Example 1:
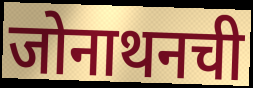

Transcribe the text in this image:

जोनाथनची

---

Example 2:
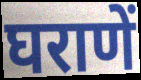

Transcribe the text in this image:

घराणें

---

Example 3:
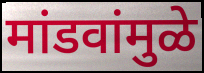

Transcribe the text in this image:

मांडवांमुळे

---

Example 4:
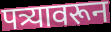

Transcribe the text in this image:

पत्र्यावरून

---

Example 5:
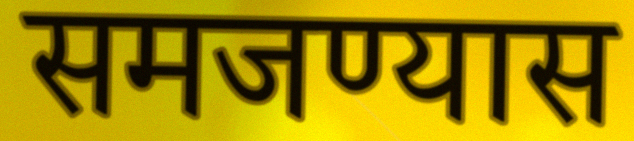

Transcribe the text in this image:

समजण्यास